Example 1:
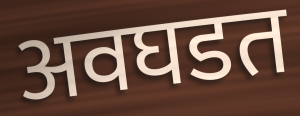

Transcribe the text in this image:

अवघडत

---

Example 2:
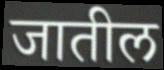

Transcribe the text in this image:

जातील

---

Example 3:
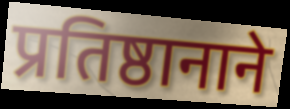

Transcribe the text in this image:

प्रतिष्ठानाने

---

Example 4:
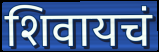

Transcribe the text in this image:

शिवायचं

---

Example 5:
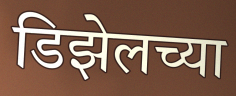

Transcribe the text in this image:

डिझेलच्या